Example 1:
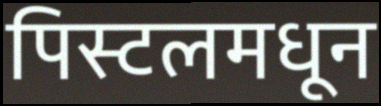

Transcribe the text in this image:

पिस्टलमधून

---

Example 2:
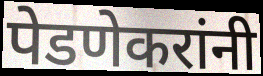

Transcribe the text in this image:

पेडणेकरांनी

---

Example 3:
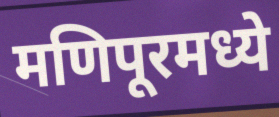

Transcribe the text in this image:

मणिपूरमध्ये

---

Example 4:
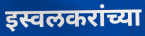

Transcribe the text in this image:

इस्वलकरांच्या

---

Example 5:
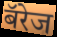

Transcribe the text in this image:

बॅरेज